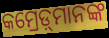
କମ୍ରେଡ଼୍‍ମାନଙ୍କ